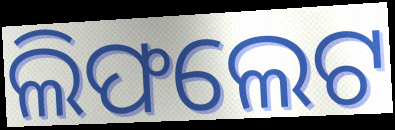
ଲିଫଲେଟ